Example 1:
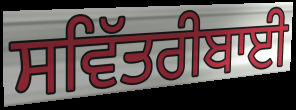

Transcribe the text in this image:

ਸਵਿੱਤਰੀਬਾਈ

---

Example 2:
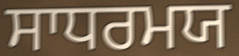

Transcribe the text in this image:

ਸਾਧਰਮਯ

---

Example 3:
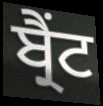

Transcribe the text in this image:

ਬ੍ਰੈਂਟ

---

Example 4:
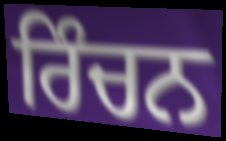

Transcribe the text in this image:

ਰਿੰਚਨ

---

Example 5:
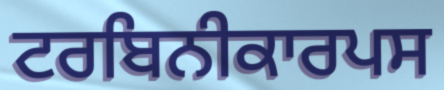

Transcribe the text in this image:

ਟਰਬਿਨੀਕਾਰਪਸ